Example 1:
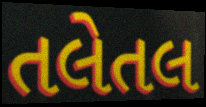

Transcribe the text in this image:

તલેતલ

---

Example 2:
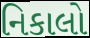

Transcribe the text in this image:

નિકાલો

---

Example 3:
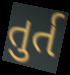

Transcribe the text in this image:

તુર્ત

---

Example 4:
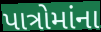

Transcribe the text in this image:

પાત્રોમાંના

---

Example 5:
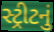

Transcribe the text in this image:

સ્ટ્રીટનું